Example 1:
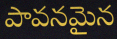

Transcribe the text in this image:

పావనమైన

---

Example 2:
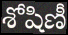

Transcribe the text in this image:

శోషిణీ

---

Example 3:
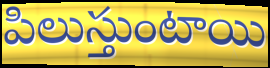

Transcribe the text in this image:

పిలుస్తుంటాయి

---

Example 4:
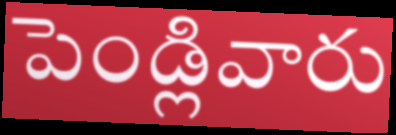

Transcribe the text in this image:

పెండ్లివారు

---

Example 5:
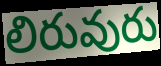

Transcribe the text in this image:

లిరువురు